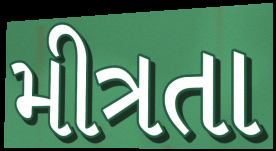
મીત્રતા